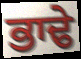
ਭਾਢੇ